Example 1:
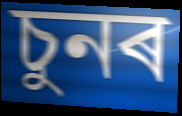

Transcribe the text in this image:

চুনৰ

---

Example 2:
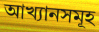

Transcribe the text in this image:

আখ্যানসমূহ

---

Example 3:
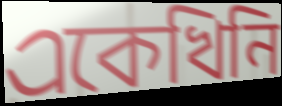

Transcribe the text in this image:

একেখিনি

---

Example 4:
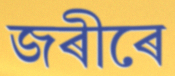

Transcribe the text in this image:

জৰীৰে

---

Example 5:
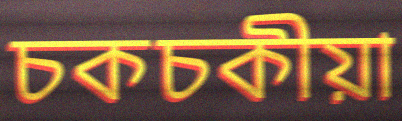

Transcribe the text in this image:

চকচকীয়া